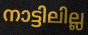
നാട്ടിലില്ല